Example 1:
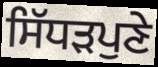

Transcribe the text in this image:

ਸਿੱਧੜਪੁਣੇ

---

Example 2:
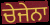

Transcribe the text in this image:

ਚੇਜੇਨਾ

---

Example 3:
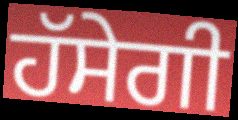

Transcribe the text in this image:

ਹੱਸੇਗੀ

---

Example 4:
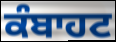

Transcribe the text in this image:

ਕੰਬਾਹਟ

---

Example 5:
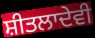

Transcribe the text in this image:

ਸ਼ੀਤਲਾਦੇਵੀ